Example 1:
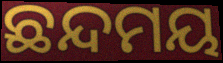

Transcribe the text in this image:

ଛନ୍ଦମୟ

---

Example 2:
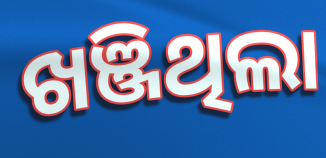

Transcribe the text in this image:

ଖଞ୍ଜିଥିଲା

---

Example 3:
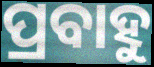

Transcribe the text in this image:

ପ୍ରବାହୁ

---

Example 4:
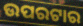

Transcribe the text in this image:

ଉପରଟାର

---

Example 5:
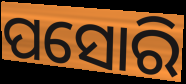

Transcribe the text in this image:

ପସୋରି